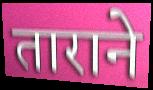
ताराने